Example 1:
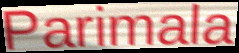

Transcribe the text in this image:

Parimala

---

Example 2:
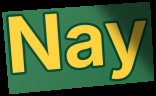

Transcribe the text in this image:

Nay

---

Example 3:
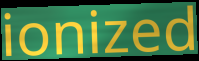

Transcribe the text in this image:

ionized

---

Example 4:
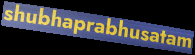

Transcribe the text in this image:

shubhaprabhusatam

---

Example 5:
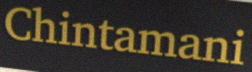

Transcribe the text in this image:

Chintamani